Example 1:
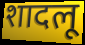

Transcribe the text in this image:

शादलू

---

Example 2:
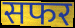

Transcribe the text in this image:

सफर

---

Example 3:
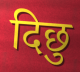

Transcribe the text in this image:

दिछु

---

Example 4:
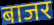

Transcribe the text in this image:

बाजर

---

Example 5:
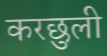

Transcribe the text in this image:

करछुली